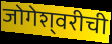
जोगेश्वरीची